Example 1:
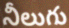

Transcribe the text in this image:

నీలుగు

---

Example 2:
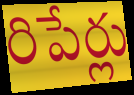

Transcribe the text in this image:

రిపేర్లు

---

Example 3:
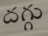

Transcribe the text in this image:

దగ్గు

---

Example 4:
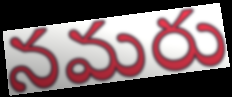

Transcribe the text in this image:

నమరు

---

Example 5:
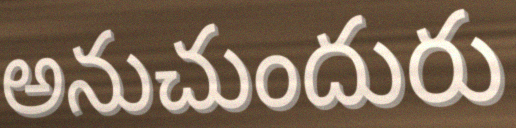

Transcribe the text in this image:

అనుచుందురు